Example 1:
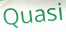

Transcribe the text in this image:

Quasi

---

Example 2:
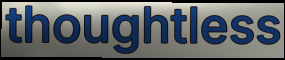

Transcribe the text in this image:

thoughtless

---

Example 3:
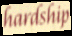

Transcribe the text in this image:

hardship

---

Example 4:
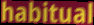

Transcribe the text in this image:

habitual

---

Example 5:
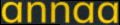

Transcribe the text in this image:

annaa